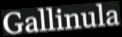
Gallinula